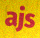
ajs